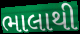
ભાલાથી